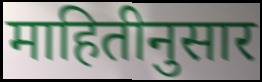
माहितीनुसार